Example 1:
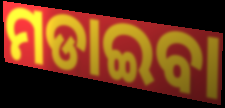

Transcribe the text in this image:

ମଡାଇବା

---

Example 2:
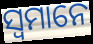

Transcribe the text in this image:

ସ୍ୱମାନେ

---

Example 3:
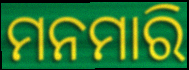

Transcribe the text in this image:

ମନମାରି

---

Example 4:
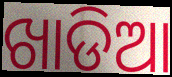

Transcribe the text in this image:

ଖାଡିଆ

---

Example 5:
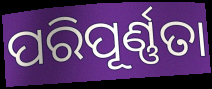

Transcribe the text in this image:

ପରିପୂର୍ଣ୍ଣତା